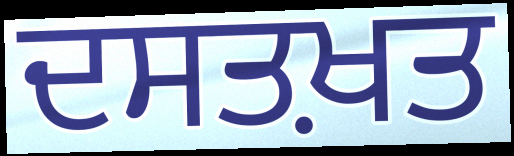
ਦਸਤ਼ਖਤ